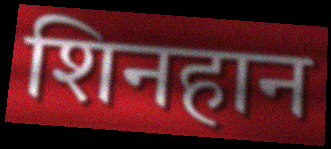
शिनहान